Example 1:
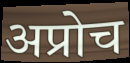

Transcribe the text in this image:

अप्रोच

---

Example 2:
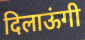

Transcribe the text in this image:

दिलाऊंगी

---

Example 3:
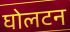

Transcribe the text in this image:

घोलटन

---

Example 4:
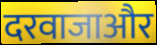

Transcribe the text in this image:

दरवाजाऔर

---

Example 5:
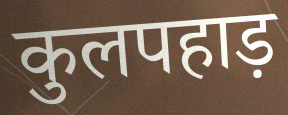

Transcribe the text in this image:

कुलपहाड़